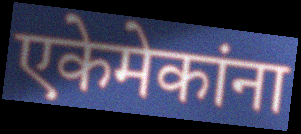
एकेमेकांना